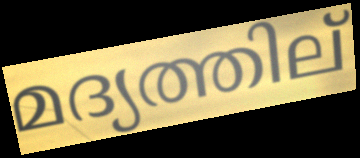
മദ്യത്തില്